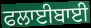
ਫਲਾਈਬਾਈ